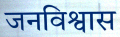
जनविश्वास